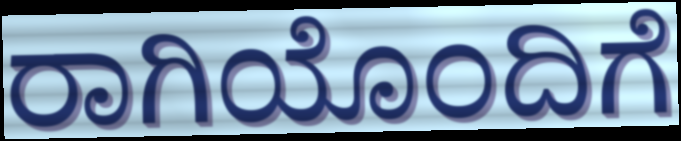
ರಾಗಿಯೊಂದಿಗೆ